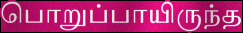
பொறுப்பாயிருந்த